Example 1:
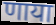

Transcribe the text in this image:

णाया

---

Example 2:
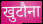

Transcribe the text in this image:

खुटौना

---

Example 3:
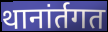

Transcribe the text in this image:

थानांर्तगत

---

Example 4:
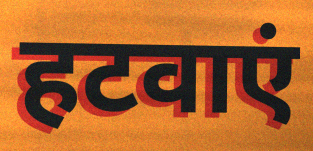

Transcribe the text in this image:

हटवाएं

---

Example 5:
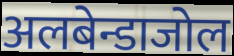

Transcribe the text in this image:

अलबेन्डाजोल